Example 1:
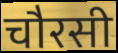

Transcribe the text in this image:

चौरसी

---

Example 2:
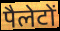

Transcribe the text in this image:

पैलेटों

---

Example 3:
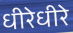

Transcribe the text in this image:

धीरेधीरे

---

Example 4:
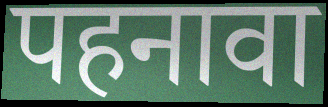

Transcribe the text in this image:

पहनावा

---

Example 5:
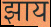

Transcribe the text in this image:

झाय